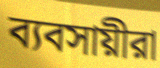
ব্যবসায়ীরা